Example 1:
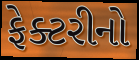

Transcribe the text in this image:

ફેક્ટરીનો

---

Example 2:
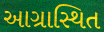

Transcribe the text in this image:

આગ્રાસ્થિત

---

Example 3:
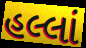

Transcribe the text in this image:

હલ્લાં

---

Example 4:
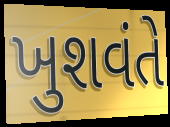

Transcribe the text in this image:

ખુશવંતે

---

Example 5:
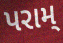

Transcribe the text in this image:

પરામ્